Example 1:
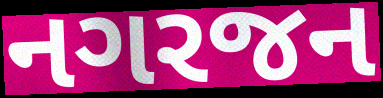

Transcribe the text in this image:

નગરજન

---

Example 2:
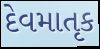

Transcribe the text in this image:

દેવમાતૃક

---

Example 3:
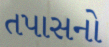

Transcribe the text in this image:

તપાસનો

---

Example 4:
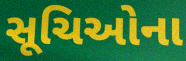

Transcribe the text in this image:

સૂચિઓના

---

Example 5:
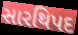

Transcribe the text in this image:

સારથિપદ